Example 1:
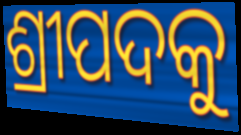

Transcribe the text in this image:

ଶ୍ରୀପଦକୁ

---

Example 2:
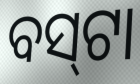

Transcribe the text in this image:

ବସ୍‍ଟା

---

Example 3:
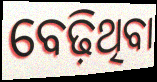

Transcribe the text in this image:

ବେଢ଼ିଥିବା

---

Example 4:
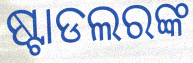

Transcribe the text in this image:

ଷ୍ଟାଡଲରଙ୍କ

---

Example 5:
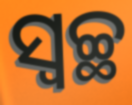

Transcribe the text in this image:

ସ୍ଵଚ୍ଛ